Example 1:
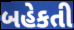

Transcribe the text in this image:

બહેકતી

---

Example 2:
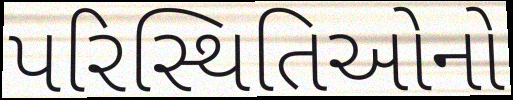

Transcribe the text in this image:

પરિસ્થિતિઓનો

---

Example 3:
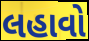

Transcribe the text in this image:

લહાવો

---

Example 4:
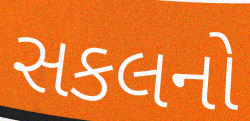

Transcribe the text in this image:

સકલનો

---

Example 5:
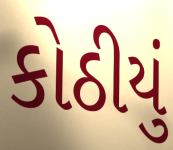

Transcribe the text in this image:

કોઠીયું